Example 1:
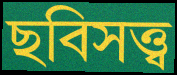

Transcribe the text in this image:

ছবিসত্ত্ব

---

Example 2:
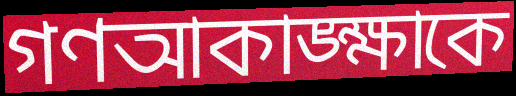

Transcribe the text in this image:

গণআকাঙ্ক্ষাকে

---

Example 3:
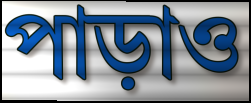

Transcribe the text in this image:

পাড়াও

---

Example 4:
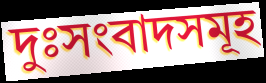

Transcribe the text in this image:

দুঃসংবাদসমূহ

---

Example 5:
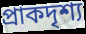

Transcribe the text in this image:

প্রাকদৃশ্য